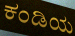
ಕಂಡಿಯ